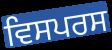
ਵਿਸਪਰਸ